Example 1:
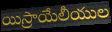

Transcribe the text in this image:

యిస్రాయేలీయుల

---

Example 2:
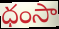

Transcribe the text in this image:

ధంసా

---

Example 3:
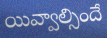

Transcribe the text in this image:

యివ్వాల్సిందే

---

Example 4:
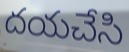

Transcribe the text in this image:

దయచేసి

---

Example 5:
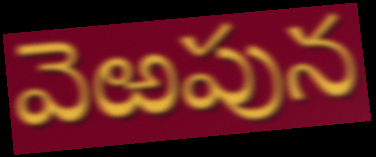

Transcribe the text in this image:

వెఱపున